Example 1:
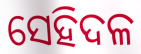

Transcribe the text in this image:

ସେହିଦଳ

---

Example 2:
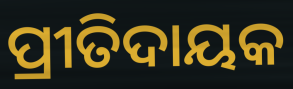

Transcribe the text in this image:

ପ୍ରୀତିଦାୟକ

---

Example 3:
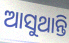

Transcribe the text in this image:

ଆସୁଥାନ୍ତି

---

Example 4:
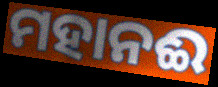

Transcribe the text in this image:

ମହାନଈ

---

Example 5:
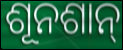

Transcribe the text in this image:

ଶୂନଶାନ୍